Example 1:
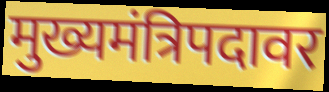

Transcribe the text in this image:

मुख्यमंत्रिपदावर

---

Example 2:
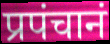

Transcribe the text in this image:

प्रपंचानं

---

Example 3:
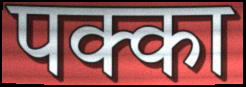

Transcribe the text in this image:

पक्का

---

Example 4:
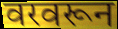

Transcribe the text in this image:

वरवरून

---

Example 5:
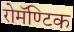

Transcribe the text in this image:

रोमॅण्टिक